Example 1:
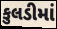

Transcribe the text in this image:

કુલડીમાં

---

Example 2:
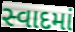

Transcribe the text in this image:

સ્વાદમાં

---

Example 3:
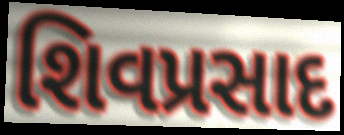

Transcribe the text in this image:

શિવપ્રસાદ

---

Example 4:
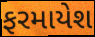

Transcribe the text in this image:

ફરમાયેશ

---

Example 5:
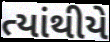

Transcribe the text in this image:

ત્યાંથીયે